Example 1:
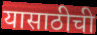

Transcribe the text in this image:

यासाठीची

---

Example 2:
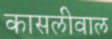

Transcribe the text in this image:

कासलीवाल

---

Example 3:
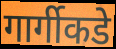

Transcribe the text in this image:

गार्गीकडे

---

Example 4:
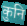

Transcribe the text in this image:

कुनि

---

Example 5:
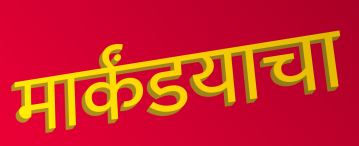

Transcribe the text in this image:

मार्कंडयाचा